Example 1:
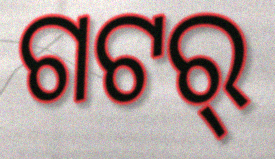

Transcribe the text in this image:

ଗଟର୍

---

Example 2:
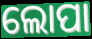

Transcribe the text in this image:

ଲୋପା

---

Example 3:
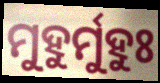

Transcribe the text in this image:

ମୁହୁର୍ମୁହୁଃ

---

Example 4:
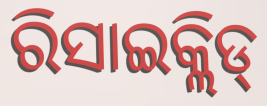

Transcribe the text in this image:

ରିସାଇକ୍ଲିଡ୍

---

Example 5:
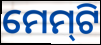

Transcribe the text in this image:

ମେମ୍‍ଟି